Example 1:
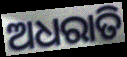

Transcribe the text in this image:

ଅଧରାତି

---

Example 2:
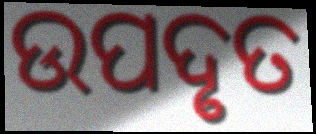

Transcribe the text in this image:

ଉପଦୃତ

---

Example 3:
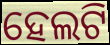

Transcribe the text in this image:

ହେଲଟି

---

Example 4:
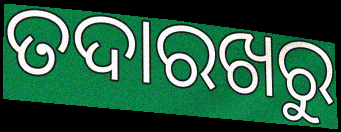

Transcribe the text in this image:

ତଦାରଖରୁ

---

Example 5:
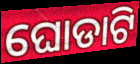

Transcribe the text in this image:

ଘୋଡାଟି